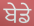
ਬੇਡੇ